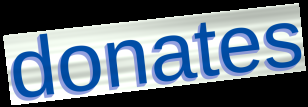
donates